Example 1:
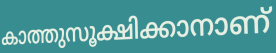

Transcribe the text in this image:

കാത്തുസൂക്ഷിക്കാനാണ്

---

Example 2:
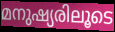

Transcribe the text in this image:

മനുഷ്യരിലൂടെ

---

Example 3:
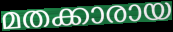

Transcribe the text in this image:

മതക്കാരായ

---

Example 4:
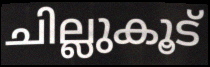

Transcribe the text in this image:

ചില്ലുകൂട്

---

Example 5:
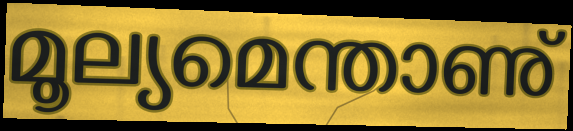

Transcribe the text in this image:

മൂല്യമെന്താണു്